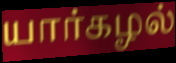
யார்கழல்